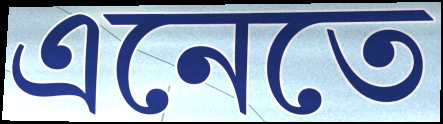
এনেতে